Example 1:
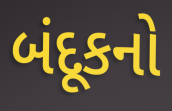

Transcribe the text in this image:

બંદૂકનો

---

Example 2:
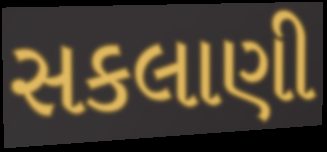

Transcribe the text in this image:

સકલાણી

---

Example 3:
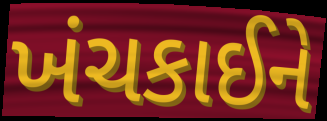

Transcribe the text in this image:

ખંચકાઈને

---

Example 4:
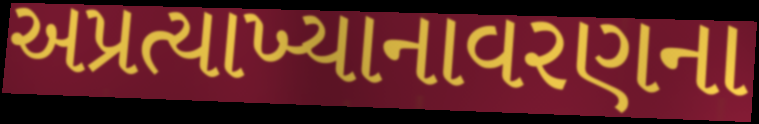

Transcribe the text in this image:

અપ્રત્યાખ્યાનાવરણના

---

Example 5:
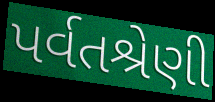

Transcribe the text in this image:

પર્વતશ્રેણી